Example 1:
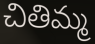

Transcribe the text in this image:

చితిమ్మ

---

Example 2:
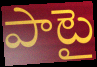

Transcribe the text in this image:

పాటై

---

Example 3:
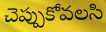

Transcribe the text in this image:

చెప్పుకోవలసి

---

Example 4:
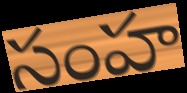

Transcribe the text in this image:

సంహ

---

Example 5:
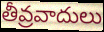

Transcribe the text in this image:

తీవ్రవాదులు